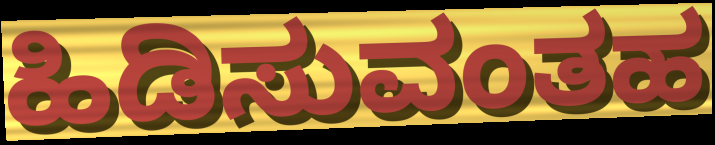
ಹಿಡಿಸುವಂತಹ